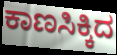
ಕಾಣಸಿಕ್ಕಿದ